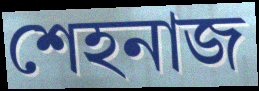
শেহনাজ